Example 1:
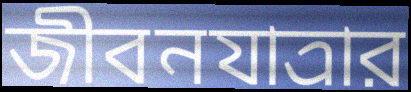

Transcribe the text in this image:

জীবনযাত্রার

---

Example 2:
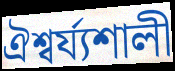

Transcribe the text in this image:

ঐশ্বর্য্যশালী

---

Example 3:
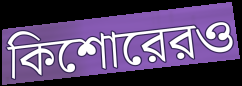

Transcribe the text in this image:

কিশোরেরও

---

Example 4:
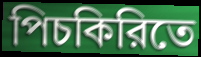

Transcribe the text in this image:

পিচকিরিতে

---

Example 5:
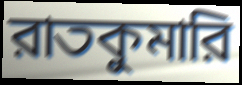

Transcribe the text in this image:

রাতকুমারি